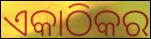
ଏକାଠିକର